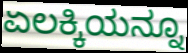
ಏಲಕ್ಕಿಯನ್ನೂ